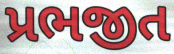
પ્રભજીત